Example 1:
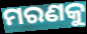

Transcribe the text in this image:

ମରଣକୁ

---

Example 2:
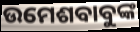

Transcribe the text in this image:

ଉମେଶବାବୁଙ୍କ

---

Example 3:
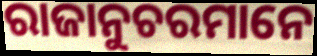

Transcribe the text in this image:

ରାଜାନୁଚରମାନେ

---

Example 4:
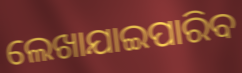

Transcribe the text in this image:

ଲେଖାଯାଇପାରିବ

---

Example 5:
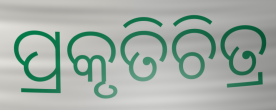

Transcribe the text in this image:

ପ୍ରକୃତିଚିତ୍ର